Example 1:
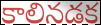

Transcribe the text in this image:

కాలినడక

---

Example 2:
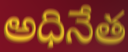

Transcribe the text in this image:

అధినేత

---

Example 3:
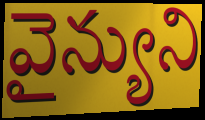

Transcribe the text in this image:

వైన్యుని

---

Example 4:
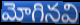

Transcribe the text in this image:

మోగినవి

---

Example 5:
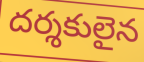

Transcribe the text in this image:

దర్శకులైన